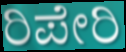
ರಿಪೇರಿ